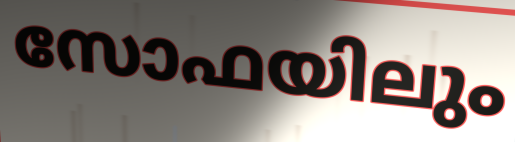
സോഫയിലും